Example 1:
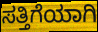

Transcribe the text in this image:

ಸತ್ತಿಗೆಯಾಗಿ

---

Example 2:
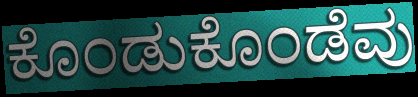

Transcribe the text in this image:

ಕೊಂಡುಕೊಂಡೆವು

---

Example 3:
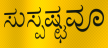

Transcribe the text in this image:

ಸುಸ್ಪಷ್ಟವೂ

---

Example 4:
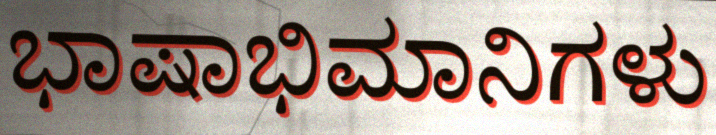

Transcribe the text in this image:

ಭಾಷಾಭಿಮಾನಿಗಳು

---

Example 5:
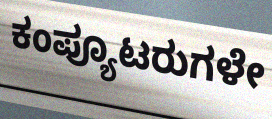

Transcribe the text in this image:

ಕಂಪ್ಯೂಟರುಗಳೇ